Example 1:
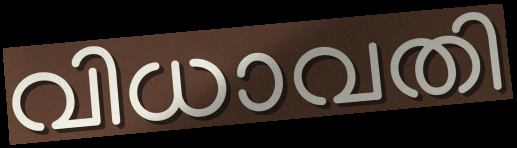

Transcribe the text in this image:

വിധാവതി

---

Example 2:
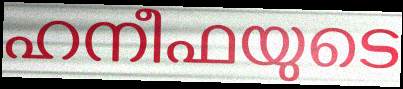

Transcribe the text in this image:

ഹനീഫയുടെ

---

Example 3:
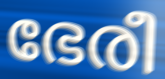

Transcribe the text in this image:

ഭേരീ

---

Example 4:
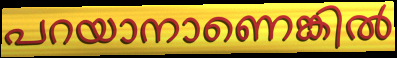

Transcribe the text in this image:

പറയാനാണെങ്കിൽ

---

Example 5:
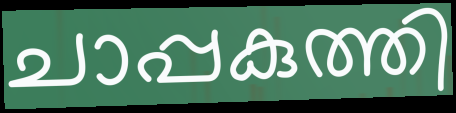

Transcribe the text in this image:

ചാപ്പകുത്തി